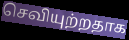
செவியுற்றதாக